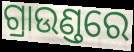
ଗ୍ରାଉଣ୍ଡରେ